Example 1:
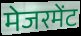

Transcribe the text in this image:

मेजरमेंट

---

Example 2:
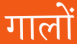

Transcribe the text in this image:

गालों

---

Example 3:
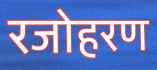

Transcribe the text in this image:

रजोहरण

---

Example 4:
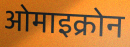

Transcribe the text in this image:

ओमाइक्रोन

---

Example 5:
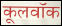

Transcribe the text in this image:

कूलवॉक